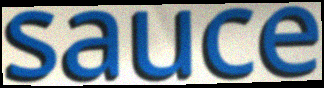
sauce